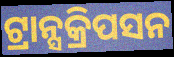
ଟ୍ରାନ୍ସକ୍ରିପସନ